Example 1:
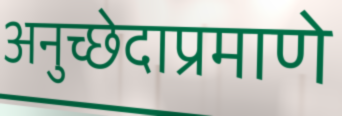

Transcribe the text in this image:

अनुच्छेदाप्रमाणे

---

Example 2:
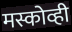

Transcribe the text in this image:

मस्कोव्ही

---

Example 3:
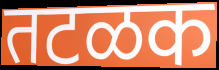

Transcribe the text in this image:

तटळक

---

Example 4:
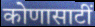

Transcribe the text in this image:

कोणासाटीं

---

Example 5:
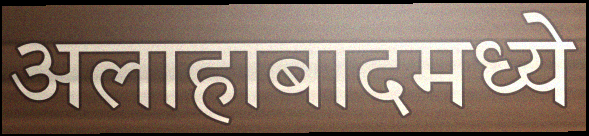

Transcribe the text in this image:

अलाहाबादमध्ये